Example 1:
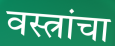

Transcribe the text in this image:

वस्त्रांचा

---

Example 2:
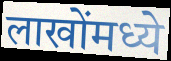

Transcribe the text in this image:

लाखोंमध्ये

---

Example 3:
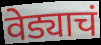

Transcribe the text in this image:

वेड्याचं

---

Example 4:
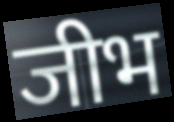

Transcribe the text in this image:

जीभ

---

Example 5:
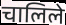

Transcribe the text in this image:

चालिले